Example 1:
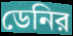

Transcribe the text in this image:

ডেনির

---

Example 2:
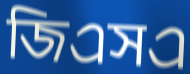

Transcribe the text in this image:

জিএসএ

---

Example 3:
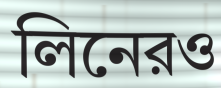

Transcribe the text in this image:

লিনেরও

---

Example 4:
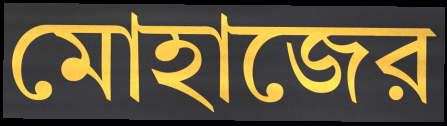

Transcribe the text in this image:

মোহাজের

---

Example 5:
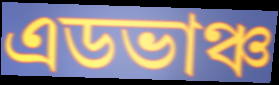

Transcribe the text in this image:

এডভাঞ্চ